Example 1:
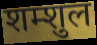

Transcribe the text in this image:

शम्शुल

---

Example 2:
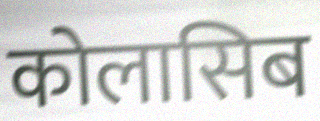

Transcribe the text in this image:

कोलासिब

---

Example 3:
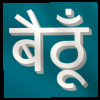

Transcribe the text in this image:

बैठूँ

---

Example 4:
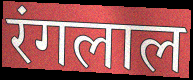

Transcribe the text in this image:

रंगलाल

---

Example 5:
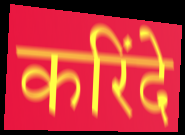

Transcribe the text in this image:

करिंदे